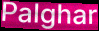
Palghar